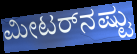
ಮೀಟರ್‌ನಷ್ಟು